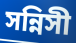
সন্নিসী